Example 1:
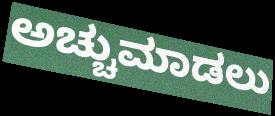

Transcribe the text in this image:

ಅಚ್ಚುಮಾಡಲು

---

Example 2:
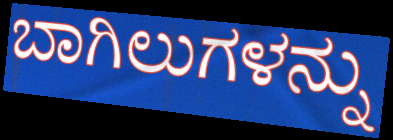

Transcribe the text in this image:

ಬಾಗಿಲುಗಳನ್ನು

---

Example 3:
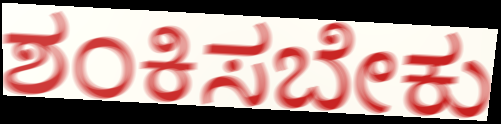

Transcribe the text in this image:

ಶಂಕಿಸಬೇಕು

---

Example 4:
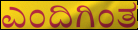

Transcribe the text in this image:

ಎಂದಿಗಿಂತ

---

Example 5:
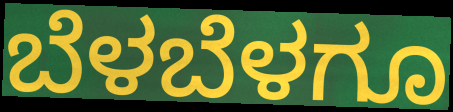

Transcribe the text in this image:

ಬೆಳಬೆಳಗೂ